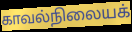
காவல்நிலையக்